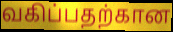
வகிப்பதற்கான